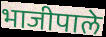
भाजीपाले